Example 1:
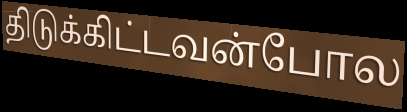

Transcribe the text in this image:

திடுக்கிட்டவன்போல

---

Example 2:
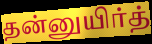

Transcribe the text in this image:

தன்னுயிர்த்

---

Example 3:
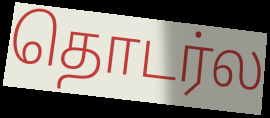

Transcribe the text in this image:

தொடர்ல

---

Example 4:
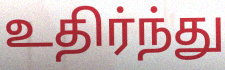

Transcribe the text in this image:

உதிர்ந்து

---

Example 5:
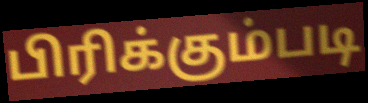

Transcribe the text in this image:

பிரிக்கும்படி